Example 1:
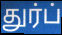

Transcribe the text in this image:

துர்ப்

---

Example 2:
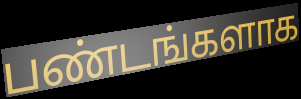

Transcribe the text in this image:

பண்டங்களாக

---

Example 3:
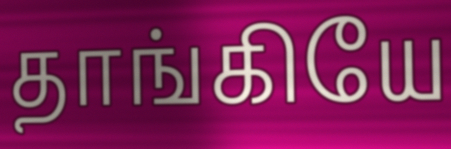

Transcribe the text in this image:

தாங்கியே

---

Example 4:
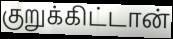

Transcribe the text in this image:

குறுக்கிட்டான்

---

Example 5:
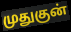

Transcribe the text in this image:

முதுகுன்